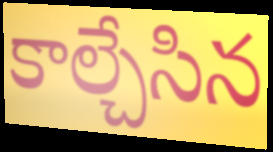
కాల్చేసిన